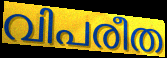
വിപരീത